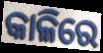
କାଳିରେ